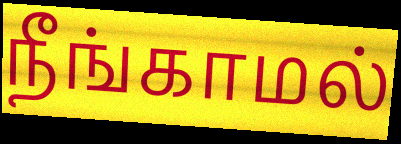
நீங்காமல்